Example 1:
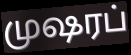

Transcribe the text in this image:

முஷரப்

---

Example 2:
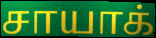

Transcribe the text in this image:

சாயாக்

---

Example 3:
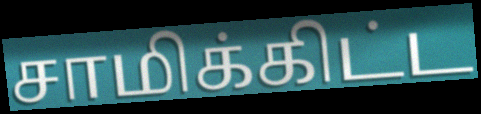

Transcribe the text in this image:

சாமிக்கிட்ட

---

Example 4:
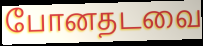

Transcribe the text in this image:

போனதடவை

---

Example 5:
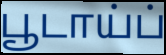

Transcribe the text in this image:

பூடாய்ப்